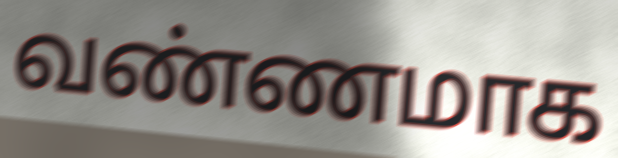
வண்ணமாக